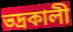
ভদ্রকালী